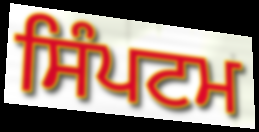
ਸਿੰਪਟਮ